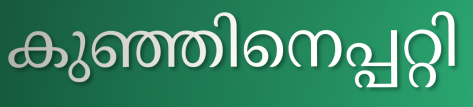
കുഞ്ഞിനെപ്പറ്റി